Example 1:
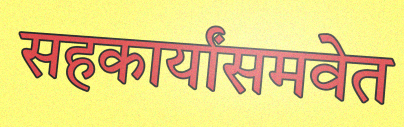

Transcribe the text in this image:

सहकार्यांसमवेत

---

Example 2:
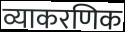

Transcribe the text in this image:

व्याकरणिक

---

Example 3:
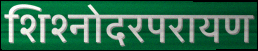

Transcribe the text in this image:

शिश्नोदरपरायण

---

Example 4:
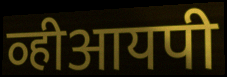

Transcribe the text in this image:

व्हीआयपी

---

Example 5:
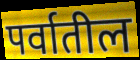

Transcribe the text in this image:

पर्वातील